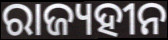
ରାଜ୍ୟହୀନ